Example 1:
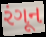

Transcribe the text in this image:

રંગૂન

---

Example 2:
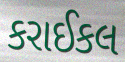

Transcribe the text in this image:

કરાઈકલ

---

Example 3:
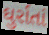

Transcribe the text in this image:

ઘુર્રાતાં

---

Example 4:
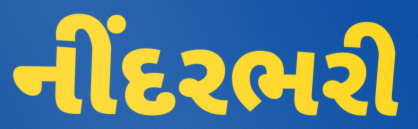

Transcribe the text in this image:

નીંદરભરી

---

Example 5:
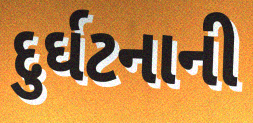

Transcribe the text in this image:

દુર્ઘટનાની